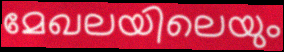
മേഖലയിലെയും